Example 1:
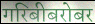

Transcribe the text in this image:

गरिबीबरोबर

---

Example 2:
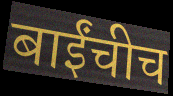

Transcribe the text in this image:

बाईंचीच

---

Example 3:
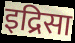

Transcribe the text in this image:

इद्रिसा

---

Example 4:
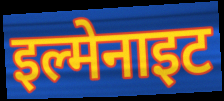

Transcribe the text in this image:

इल्मेनाइट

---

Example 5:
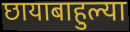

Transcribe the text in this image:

छायाबाहुल्या